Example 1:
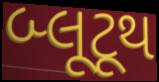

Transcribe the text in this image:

બ્લૂટૂથ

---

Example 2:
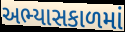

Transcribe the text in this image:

અભ્યાસકાળમાં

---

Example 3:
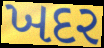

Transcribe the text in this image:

ખદર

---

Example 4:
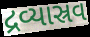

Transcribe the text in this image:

દ્રવ્યાસ્રવ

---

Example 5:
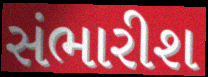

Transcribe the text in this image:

સંભારીશ